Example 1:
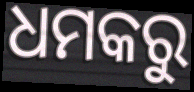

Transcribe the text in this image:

ଧମକରୁ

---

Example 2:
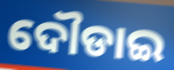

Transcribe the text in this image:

ଦୌଡାଇ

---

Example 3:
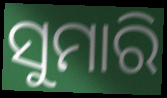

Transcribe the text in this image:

ସୁମାରି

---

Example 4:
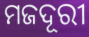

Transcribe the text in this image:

ମଜଦୂରୀ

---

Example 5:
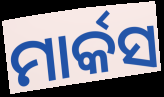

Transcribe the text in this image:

ମାର୍କସ